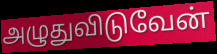
அழுதுவிடுவேன்